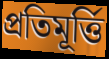
প্ৰতিমূৰ্ত্তি